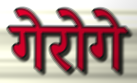
गेरोगे